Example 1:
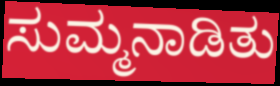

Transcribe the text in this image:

ಸುಮ್ಮನಾಡಿತು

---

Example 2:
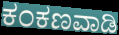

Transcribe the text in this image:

ಕಂಕಣವಾಡಿ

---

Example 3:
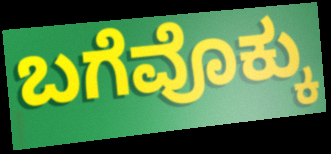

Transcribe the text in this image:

ಬಗೆವೊಕ್ಕು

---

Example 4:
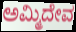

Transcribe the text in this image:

ಅಮ್ಮಿದೇವ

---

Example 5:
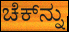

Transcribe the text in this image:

ಚೆಕ್‌ನ್ನು